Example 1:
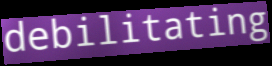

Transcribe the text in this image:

debilitating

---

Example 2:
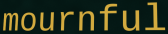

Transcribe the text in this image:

mournful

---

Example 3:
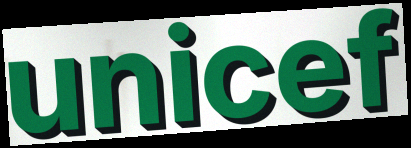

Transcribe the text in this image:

unicef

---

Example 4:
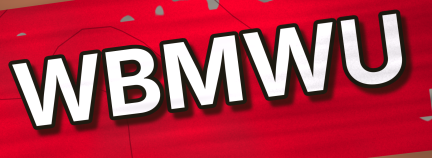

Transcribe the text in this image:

WBMWU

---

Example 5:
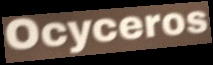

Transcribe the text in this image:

Ocyceros